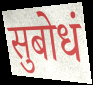
सुबोधं